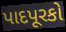
પાદપૂરકો